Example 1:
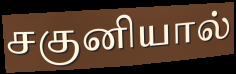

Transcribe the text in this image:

சகுனியால்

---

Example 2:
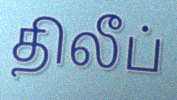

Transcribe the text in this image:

திலீப்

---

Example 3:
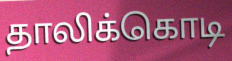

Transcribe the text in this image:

தாலிக்கொடி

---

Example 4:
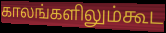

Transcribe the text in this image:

காலங்களிலும்கூட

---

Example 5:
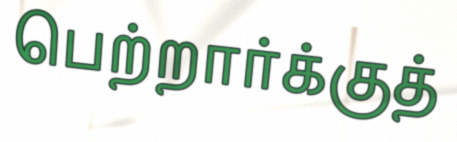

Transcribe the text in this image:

பெற்றார்க்குத்